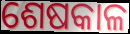
ଶେଷକାଳ